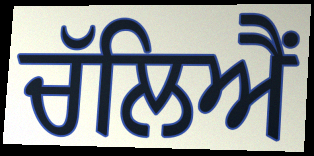
ਚੱਲਿਐਂ